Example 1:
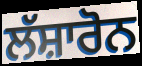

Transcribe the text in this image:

ਲੱਸ਼ਾਰੋਨ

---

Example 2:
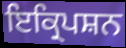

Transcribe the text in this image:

ਇਕ੍ਰਿਪਸ਼ਨ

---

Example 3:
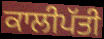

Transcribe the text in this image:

ਕਾਲੀਪੱਤੀ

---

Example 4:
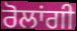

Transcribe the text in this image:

ਰੋਲਾਂਗੀ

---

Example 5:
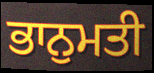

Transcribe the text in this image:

ਭਾਨੁਮਤੀ